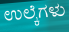
ಉಲ್ಕೆಗಳು